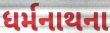
ધર્મનાથના